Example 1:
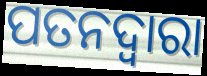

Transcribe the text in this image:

ପତନଦ୍ୱାରା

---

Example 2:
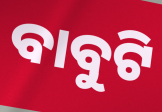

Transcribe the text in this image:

ବାବୁଟି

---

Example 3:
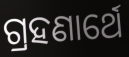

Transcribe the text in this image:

ଗ୍ରହଣାର୍ଥେ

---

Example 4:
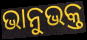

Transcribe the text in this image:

ଭାନୁଭକ୍ତ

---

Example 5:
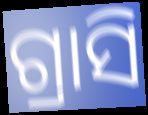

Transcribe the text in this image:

ଗ୍ରାସି